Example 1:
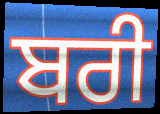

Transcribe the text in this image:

ਬਰੀ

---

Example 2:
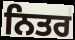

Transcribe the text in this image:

ਨਿਤਰ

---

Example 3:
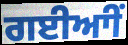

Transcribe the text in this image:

ਗਈਆੀਂ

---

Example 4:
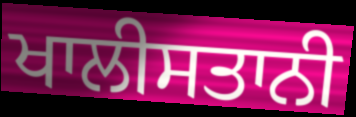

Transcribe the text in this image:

ਖਾਲੀਸਤਾਨੀ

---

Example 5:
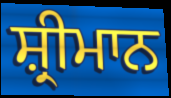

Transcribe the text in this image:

ਸ਼੍ਰੀਮਾਨ